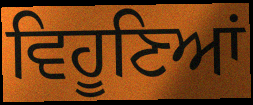
ਵਿਹੂਣਿਆਂ